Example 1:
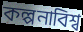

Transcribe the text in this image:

কল্পনাবিশ্ব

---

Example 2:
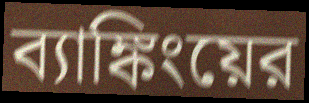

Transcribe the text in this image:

ব্যাঙ্কিংয়ের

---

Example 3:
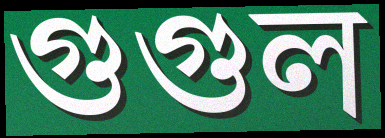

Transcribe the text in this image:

গুগুল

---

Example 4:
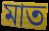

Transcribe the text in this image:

মাত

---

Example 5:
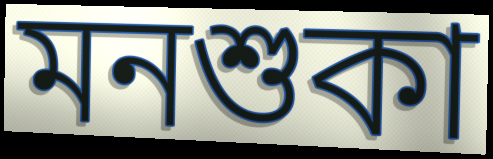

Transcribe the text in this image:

মনশুকা